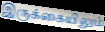
இருக்கையிலும்